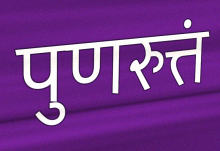
पुणरुत्तं